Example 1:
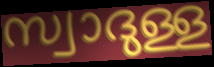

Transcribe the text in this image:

സ്വാദുള്ള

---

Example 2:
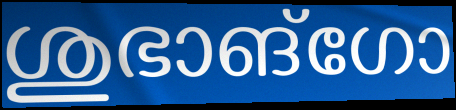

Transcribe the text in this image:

ശുഭാങ്ഗോ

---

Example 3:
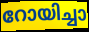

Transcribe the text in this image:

റോയിച്ചാ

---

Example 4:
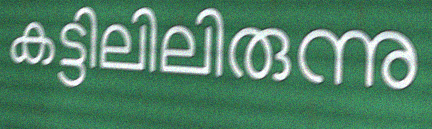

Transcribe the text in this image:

കട്ടിലിലിരുന്നു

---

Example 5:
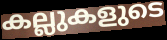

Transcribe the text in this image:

കല്ലുകളുടെ